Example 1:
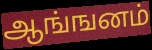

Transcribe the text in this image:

ஆங்ஙனம்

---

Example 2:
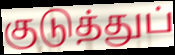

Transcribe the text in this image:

குடுத்துப்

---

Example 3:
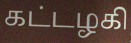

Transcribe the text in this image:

கட்டழகி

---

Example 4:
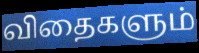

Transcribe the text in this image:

விதைகளும்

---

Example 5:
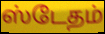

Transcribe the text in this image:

ஸ்டேதம்